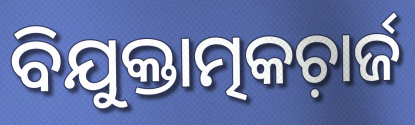
ବିଯୁକ୍ତାତ୍ମକଚ଼ାର୍ଜ